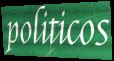
politicos